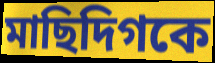
মাছিদিগকে